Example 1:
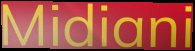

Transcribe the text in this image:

Midiani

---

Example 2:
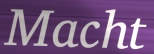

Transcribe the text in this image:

Macht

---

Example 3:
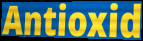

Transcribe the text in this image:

Antioxid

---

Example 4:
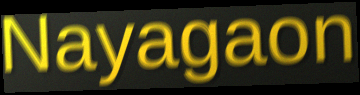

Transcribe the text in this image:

Nayagaon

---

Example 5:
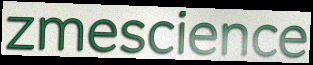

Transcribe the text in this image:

zmescience